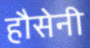
हौसेनी